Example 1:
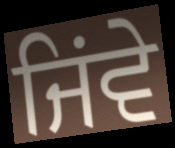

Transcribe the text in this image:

ਜਿਂਵੇ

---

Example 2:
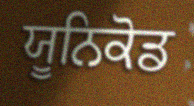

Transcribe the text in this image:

ਯੂਨਿਕੋਡ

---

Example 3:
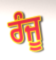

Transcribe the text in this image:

ਰੰਜੂ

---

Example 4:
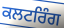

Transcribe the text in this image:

ਕਲਟਰਿੰਗ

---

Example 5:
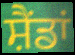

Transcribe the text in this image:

ਸ਼ੈਂਡਾਂ